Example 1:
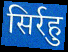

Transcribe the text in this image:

सिर्रहु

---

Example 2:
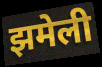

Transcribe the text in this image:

झमेली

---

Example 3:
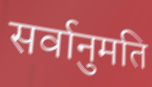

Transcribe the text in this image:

सर्वानुमति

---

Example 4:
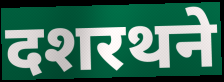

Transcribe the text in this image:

दशरथने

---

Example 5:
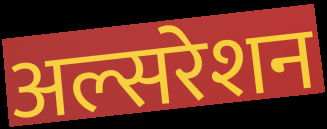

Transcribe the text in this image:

अल्सरेशन